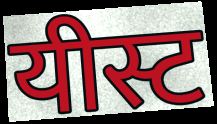
यीस्ट